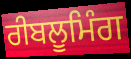
ਰੀਬਲੂਮਿੰਗ